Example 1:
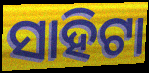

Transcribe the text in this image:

ସାହିଟା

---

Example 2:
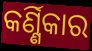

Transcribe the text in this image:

କର୍ଣ୍ଣିକାର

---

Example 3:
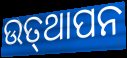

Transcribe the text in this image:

ଉତ୍‌ଥାପନ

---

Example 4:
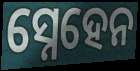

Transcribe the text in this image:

ସ୍ନେହେନ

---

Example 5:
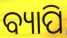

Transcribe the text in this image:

ବ୍ୟାପି